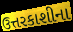
ઉત્તરકાશીના